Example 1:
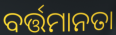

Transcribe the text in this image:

ବର୍ତ୍ତମାନତା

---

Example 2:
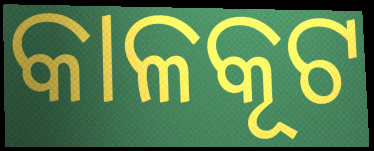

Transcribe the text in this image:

କାଳକୂଟ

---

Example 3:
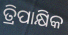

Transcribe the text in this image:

ତ୍ରିପାକ୍ଷିକ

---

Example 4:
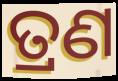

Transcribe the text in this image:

ତ୍ରଣ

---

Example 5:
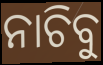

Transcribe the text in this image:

ନାଚିବୁ